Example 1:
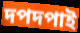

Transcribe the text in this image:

দপদপাই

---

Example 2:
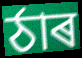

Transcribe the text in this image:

ঠাৰ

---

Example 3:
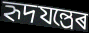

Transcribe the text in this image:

হৃদযন্ত্ৰেৰ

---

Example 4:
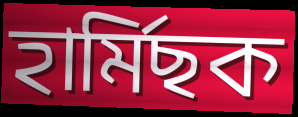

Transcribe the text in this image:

হাৰ্মিছক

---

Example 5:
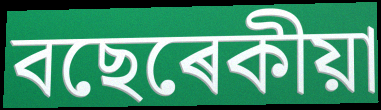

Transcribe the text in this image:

বছেৰেকীয়া